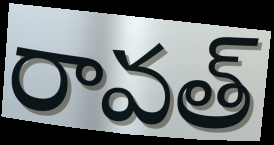
రావత్